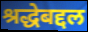
श्रद्धेबद्दल